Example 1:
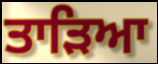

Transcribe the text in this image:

ਤਾੜਿਆ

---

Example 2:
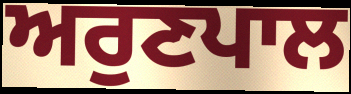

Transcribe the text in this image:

ਅਰੁਣਪਾਲ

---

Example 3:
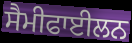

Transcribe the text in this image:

ਸੈਮੀਫਾਈਲਨ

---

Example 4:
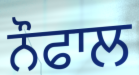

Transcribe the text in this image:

ਨੌਫਾਲ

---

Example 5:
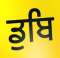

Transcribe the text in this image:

ਡੁਬਿ